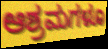
ಆಶ್ರಮಗಳೂ